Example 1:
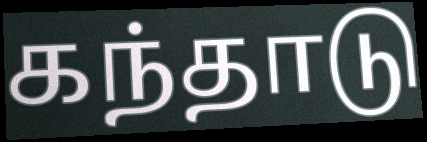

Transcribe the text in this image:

கந்தாடு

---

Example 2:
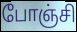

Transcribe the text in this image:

போஞ்சி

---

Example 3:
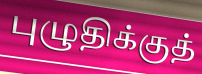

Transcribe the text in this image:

புழுதிக்குத்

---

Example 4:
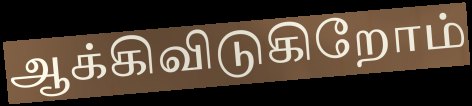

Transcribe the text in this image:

ஆக்கிவிடுகிறோம்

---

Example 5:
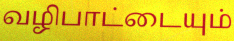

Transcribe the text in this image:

வழிபாட்டையும்